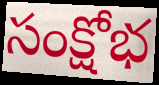
సంక్షోభ